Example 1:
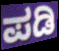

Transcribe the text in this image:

ಪಡಿ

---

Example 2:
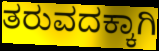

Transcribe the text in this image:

ತರುವದಕ್ಕಾಗಿ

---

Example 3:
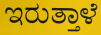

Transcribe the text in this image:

ಇರುತ್ತಾಳೆ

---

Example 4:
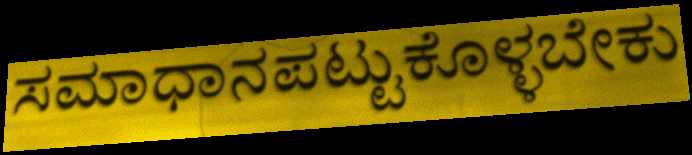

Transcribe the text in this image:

ಸಮಾಧಾನಪಟ್ಟುಕೊಳ್ಳಬೇಕು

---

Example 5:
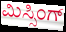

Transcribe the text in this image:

ಮಿಸ್ಸಿಂಗ್